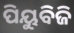
ପିୟୁବିଜି